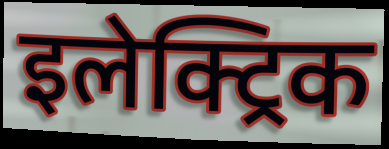
इलेक्ट्रिक